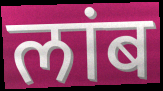
लांब